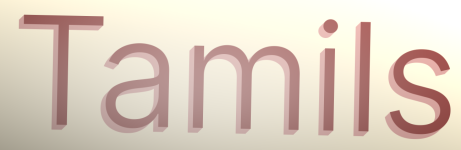
Tamils